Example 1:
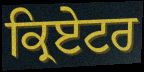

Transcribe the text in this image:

ਕ੍ਰਿਏਟਰ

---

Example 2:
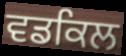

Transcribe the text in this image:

ਵਡਕਿਲ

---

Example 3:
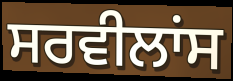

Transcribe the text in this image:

ਸਰਵੀਲਾਂਸ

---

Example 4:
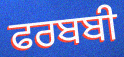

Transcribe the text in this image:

ਫਰਬਬੀ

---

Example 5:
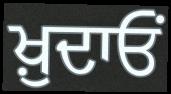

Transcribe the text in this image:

ਖ਼ੁਦਾਓਂ